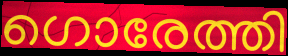
ഗൊരേത്തി